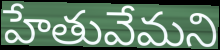
హేతువేమని